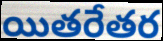
యితరేతర